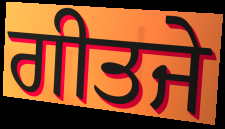
ਗੀਤਜੇ